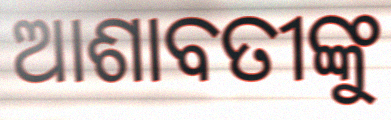
ଆଶାବତୀଙ୍କୁ